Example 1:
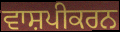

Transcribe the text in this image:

ਵਾਸ਼ਪੀਕਰਨ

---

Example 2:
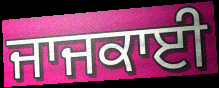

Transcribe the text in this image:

ਜਾਜਕਾਈ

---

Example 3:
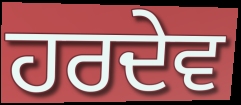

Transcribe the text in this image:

ਹਰਦੇਵ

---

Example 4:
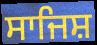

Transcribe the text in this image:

ਸਾਜਿਸ਼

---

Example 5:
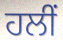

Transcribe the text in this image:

ਹਲੀਂ